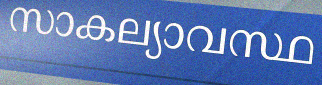
സാകല്യാവസ്ഥ